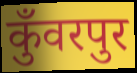
कुँवरपुर